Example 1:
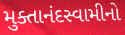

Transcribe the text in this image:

મુક્તાનંદસ્વામીનો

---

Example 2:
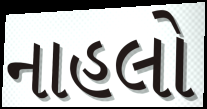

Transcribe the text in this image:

નાહલો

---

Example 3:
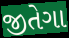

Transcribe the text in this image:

જીતેગા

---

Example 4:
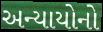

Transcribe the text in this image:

અન્યાયોનો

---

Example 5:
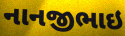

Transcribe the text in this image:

નાનજીભાઇ